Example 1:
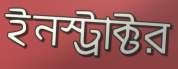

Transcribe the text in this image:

ইনস্ট্রাক্টর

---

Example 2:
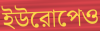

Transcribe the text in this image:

ইউরোপেও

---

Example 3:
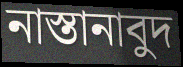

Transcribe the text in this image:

নাস্তানাবুদ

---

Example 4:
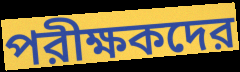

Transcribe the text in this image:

পরীক্ষকদের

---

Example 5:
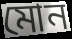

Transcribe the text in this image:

মোন